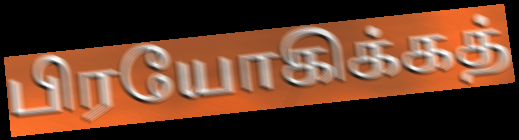
பிரயோகிக்கத்